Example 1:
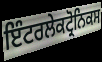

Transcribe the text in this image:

ਇੰਟਰਲੇਕਟ੍ਰੋਨਿਕਸ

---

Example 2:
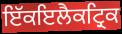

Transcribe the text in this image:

ਇੱਕਇਲੈਕਟ੍ਰਿਕ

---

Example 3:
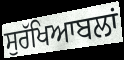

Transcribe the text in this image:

ਸੁਰੱਖਿਆਬਲਾਂ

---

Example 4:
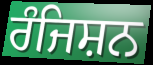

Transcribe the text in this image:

ਰੰਜਿਸ਼ਨ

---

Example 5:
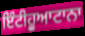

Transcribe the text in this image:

ਇੰਟੀਹੂਆਟਾਨਾ